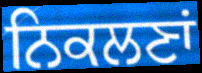
ਨਿਕਲਣਾਂ